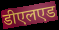
डीएलएड